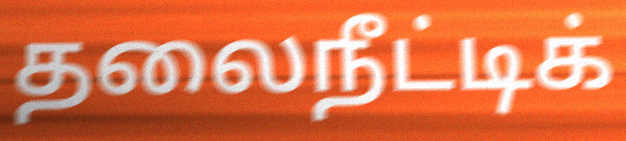
தலைநீட்டிக்